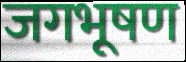
जगभूषण